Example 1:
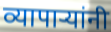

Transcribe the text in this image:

व्यापाऱ्यांनी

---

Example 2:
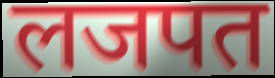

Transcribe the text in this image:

लजपत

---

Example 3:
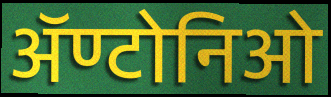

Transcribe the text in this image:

ॲण्टोनिओ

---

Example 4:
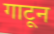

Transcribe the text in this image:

गाटून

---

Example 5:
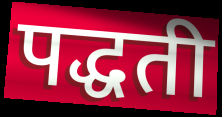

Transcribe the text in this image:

पद्धती